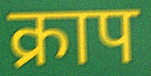
क्राप